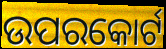
ଉପରକୋର୍ଟ